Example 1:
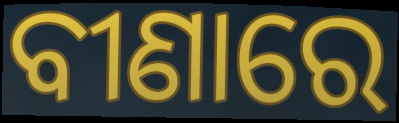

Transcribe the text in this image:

ବୀଣାରେ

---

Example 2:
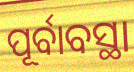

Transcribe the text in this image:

ପୂର୍ବାବସ୍ଥା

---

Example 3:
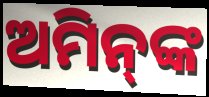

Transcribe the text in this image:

ଅମିନ୍‌ଙ୍କ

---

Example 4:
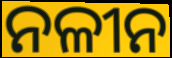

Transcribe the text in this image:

ନଳୀନ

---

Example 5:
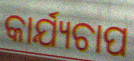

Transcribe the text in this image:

କାର୍ଯ୍ୟଚାପ